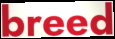
breed